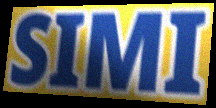
SIMI